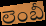
లెంబీ